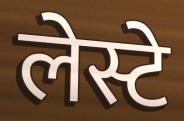
लेस्टे